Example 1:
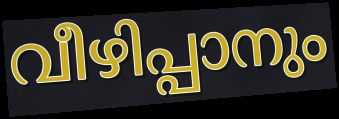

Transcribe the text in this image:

വീഴിപ്പാനും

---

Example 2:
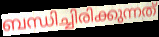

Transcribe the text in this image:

ബന്ധിച്ചിരിക്കുന്നത്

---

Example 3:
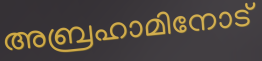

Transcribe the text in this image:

അബ്രഹാമിനോട്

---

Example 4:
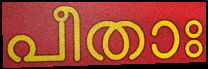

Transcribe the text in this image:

പീതാഃ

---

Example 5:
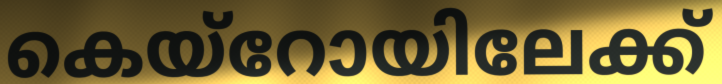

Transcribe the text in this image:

കെയ്റോയിലേക്ക്